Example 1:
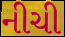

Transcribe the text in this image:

નીચી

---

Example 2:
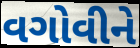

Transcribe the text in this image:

વગોવીને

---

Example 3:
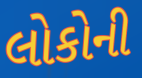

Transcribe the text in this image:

લોકોની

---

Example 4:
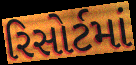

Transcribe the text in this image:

રિસોર્ટમાં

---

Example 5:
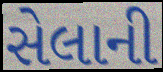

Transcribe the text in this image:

સેલાની